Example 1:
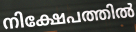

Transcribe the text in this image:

നിക്ഷേപത്തിൽ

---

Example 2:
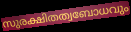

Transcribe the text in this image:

സുരക്ഷിതത്വബോധവും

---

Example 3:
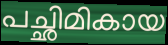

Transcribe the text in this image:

പച്ഛിമികായ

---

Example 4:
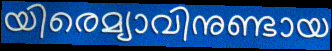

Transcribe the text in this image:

യിരെമ്യാവിനുണ്ടായ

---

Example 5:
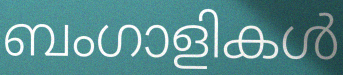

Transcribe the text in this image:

ബംഗാളികൾ